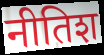
नीतिश